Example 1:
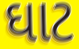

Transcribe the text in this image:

ઘાટ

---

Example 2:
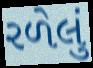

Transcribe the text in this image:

રળેલું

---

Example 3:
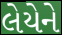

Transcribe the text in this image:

લેયેને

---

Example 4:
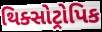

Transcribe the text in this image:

થિક્સોટ્રોપિક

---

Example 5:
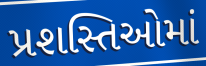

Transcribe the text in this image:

પ્રશસ્તિઓમાં